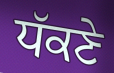
ਧੱਕਣੇ